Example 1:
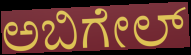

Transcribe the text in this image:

ಅಬಿಗೇಲ್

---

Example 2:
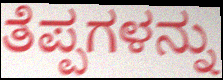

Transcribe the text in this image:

ತೆಪ್ಪಗಳನ್ನು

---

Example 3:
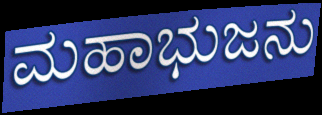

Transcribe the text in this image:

ಮಹಾಭುಜನು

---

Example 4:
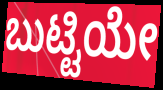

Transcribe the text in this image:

ಬುಟ್ಟಿಯೇ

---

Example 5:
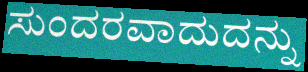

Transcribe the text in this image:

ಸುಂದರವಾದುದನ್ನು